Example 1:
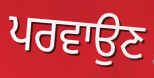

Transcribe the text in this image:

ਪਰਵਾਉਣ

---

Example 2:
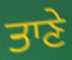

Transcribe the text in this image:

ਤਾਣੇ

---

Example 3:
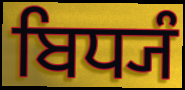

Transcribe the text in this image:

ਬਿਧ੍ਯੰ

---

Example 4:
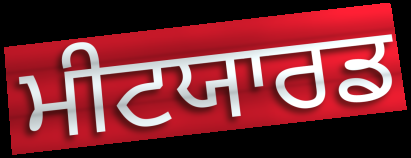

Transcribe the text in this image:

ਮੀਟਯਾਰਡ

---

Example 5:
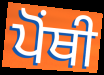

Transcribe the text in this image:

ਪੋਂਥੀ